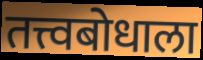
तत्त्वबोधाला